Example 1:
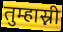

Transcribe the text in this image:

तुम्हास्नी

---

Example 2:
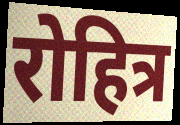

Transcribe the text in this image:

रोहित्र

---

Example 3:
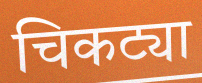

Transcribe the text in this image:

चिकट्या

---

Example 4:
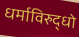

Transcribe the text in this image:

धर्माविरुद्धो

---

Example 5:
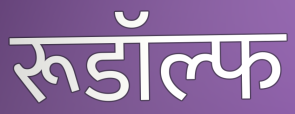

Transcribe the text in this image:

रूडॉल्फ